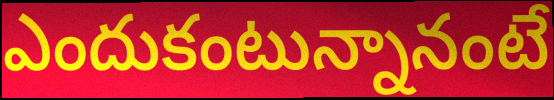
ఎందుకంటున్నానంటే